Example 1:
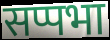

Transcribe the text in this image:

सप्पभा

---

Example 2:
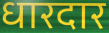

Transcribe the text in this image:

धारदार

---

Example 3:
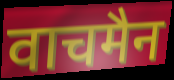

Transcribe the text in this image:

वाचमैन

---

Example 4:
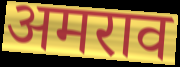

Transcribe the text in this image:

अमराव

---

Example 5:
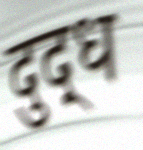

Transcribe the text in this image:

दुद्ध